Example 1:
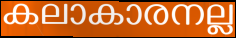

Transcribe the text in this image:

കലാകാരനല്ല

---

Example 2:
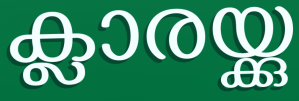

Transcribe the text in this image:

ക്ലാരയ്ക്കു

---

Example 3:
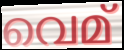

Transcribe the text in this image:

വെമ്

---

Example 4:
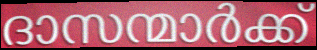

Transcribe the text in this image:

ദാസന്മാർക്ക്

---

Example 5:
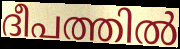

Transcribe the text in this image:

ദീപത്തിൽ